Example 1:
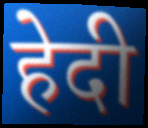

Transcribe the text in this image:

हेदी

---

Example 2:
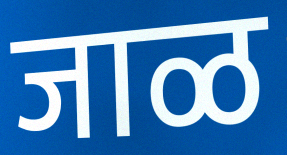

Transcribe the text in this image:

जाळ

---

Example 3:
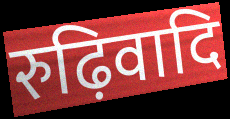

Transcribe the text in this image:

रुढ़िवादि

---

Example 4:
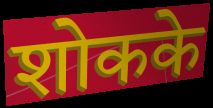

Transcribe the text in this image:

शोकके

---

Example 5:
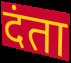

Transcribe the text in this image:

दंता